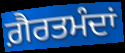
ਗ਼ੈਰਤਮੰਦਾਂ